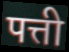
पत्ती